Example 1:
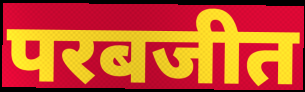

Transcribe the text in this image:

परबजीत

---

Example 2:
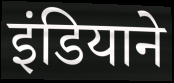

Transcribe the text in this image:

इंडियाने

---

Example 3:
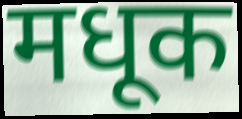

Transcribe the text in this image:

मधूक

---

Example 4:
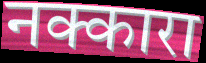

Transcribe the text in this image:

नक्कारा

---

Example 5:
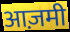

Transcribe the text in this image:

आज़मी